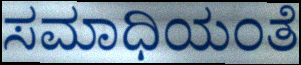
ಸಮಾಧಿಯಂತೆ